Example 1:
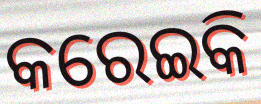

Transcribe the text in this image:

କରେଇକି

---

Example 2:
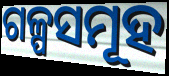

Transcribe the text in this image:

ଗଳ୍ପସମୂହ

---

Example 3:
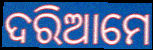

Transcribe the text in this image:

ଦରିଆମେ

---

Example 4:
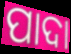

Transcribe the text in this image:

ପାଦା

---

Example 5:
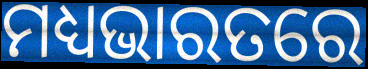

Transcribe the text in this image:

ମଧ୍ୟଭାରତରେ